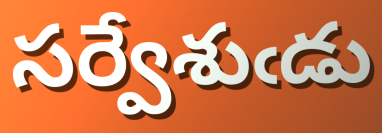
సర్వేశుఁడు